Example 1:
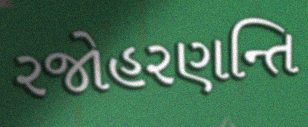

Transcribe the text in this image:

રજોહરણન્તિ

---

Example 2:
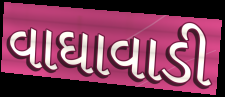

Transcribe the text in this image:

વાઘાવાડી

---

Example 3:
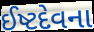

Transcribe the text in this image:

ઈષ્ટદેવના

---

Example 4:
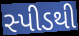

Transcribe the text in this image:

સ્પીડથી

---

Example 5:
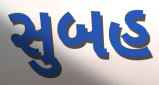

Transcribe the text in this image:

સુબહ